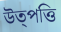
উত্পত্তি